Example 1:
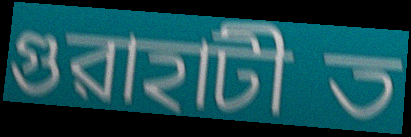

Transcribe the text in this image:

গুৱাহাটীত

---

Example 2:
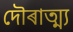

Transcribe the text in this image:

দৌৰাত্ম্য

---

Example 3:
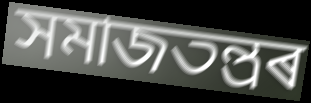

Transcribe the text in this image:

সমাজতন্ত্ৰৰ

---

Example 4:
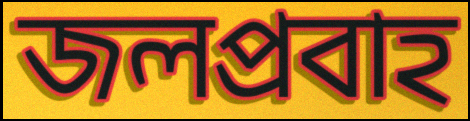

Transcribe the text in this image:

জলপ্ৰবাহ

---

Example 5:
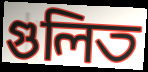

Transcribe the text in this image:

গুলিত